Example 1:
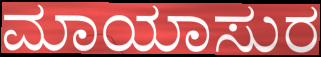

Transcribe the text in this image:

ಮಾಯಾಸುರ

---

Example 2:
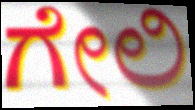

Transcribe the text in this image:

ಗೇಲಿ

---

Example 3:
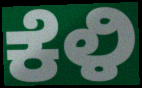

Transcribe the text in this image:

ಕೆಳಿ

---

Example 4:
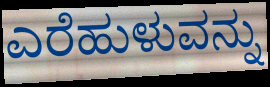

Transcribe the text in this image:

ಎರೆಹುಳುವನ್ನು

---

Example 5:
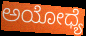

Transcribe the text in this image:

ಅಯೋಧ್ಯೆ